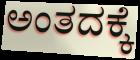
ಅಂತದಕ್ಕೆ